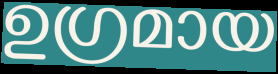
ഉഗ്രമായ